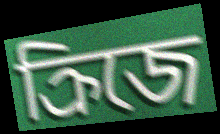
ক্রিজে